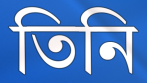
তিনি